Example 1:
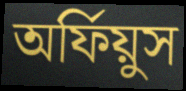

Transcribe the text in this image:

অর্ফিয়ুস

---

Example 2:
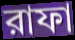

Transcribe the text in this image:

রাফা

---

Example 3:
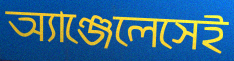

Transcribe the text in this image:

অ্যাঞ্জেলেসেই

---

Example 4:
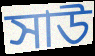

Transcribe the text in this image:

সাউ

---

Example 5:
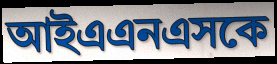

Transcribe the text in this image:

আইএএনএসকে